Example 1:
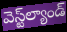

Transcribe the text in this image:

వెస్ట్‌ల్యాండ్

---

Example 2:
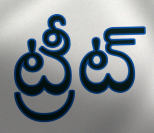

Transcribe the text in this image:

ట్రీట్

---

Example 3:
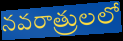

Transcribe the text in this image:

నవరాత్రులలో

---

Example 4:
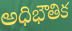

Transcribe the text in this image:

అధిభౌతిక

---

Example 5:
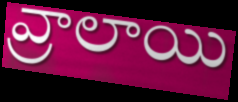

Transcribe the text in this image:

వ్రాలాయి